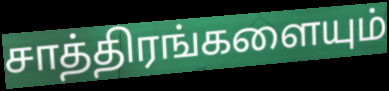
சாத்திரங்களையும்